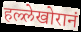
हल्लेखोरानं